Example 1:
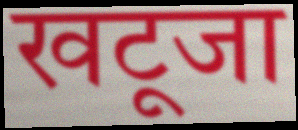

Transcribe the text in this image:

खटूजा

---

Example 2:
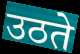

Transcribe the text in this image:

उठते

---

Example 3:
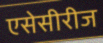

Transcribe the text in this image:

एसेसीरीज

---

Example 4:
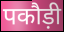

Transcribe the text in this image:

पकौड़ी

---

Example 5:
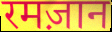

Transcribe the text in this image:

रमज़ान